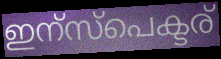
ഇന്സ്പെക്ടര്